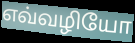
எவ்வழியோ